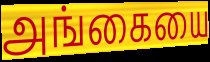
அங்கையை